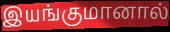
இயங்குமானால்